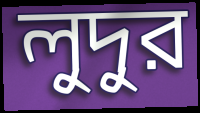
লুদুর